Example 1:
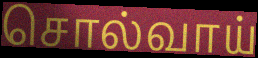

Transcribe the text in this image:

சொல்வாய்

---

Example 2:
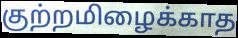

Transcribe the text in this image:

குற்றமிழைக்காத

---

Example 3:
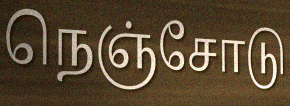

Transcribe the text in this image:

நெஞ்சோடு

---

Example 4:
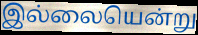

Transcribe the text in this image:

இல்லையென்று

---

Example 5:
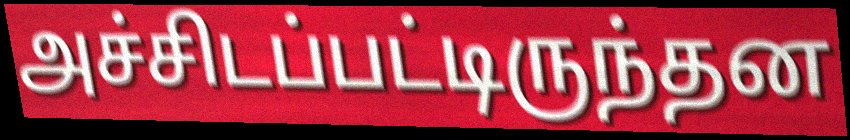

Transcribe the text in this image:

அச்சிடப்பட்டிருந்தன